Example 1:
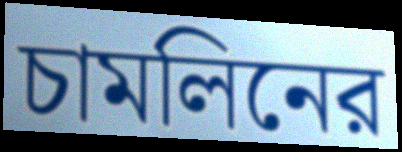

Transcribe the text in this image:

চামলিনের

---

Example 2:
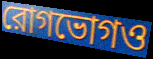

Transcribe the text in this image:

রোগভোগও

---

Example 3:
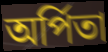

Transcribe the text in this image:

অর্পিতা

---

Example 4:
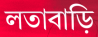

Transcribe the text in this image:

লতাবাড়ি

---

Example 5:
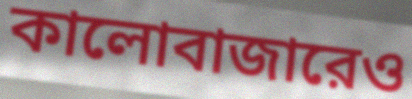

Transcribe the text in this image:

কালোবাজারেও